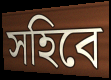
সহিবে